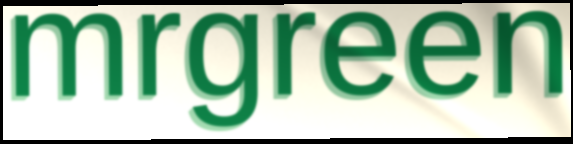
mrgreen